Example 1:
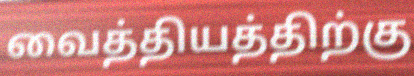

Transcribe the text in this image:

வைத்தியத்திற்கு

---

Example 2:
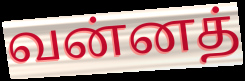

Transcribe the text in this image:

வன்னத்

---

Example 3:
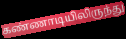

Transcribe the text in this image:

கண்ணாடியிலிருந்து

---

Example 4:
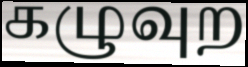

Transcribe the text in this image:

கழுவுற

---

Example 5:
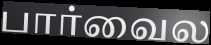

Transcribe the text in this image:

பார்வைல